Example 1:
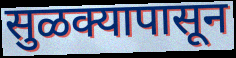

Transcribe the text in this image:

सुळक्यापासून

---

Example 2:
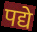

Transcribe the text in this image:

पद्ये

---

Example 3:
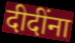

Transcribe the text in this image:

दीदींना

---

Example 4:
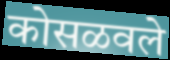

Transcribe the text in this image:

कोसळवले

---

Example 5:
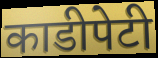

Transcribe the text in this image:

काडीपेटी